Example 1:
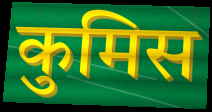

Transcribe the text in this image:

कुमिस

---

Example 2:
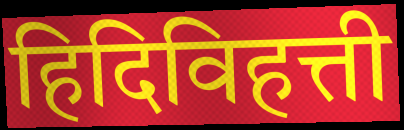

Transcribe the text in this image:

हिदिविहत्ती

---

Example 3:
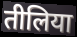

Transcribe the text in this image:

तीलिया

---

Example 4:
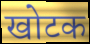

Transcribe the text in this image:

खोटक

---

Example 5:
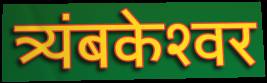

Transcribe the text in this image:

त्र्यंबकेश्वर